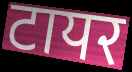
टायर